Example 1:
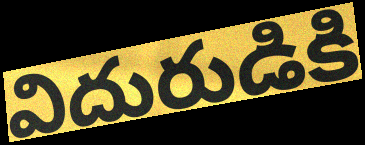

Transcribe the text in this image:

విదురుడికి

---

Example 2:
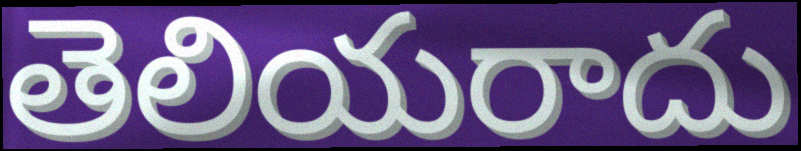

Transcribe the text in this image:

తెలియరాదు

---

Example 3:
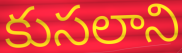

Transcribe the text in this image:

కుసలాని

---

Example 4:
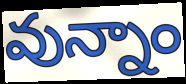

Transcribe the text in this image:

వున్నాం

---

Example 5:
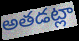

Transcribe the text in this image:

అతడట్లా